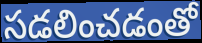
సడలించడంతో